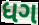
ધગ